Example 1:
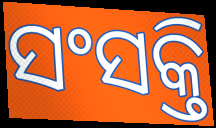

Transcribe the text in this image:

ସଂସକ୍ତି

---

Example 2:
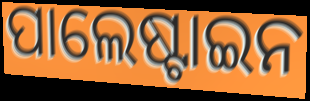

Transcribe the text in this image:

ପାଲେଷ୍ଟାଇନ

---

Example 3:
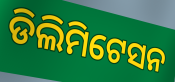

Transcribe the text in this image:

ଡିଲିମିଟେସନ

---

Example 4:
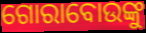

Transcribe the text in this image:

ଗୋରାବୋଉଙ୍କୁ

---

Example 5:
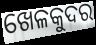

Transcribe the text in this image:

ଖେଳକୁଦର